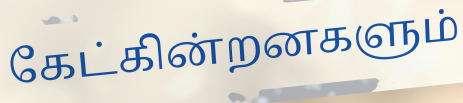
கேட்கின்றனகளும்